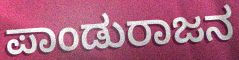
ಪಾಂಡುರಾಜನ